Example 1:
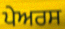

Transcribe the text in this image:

ਪੇਅਰਸ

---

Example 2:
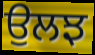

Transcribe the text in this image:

ਉਲਝ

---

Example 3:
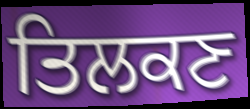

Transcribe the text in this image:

ਤਿਲਕਣ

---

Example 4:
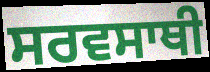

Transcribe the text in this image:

ਸਰਵਸਾਥੀ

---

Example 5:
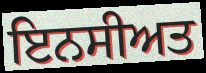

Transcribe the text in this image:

ਇਨਸੀਅਤ